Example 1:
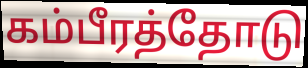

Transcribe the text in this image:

கம்பீரத்தோடு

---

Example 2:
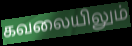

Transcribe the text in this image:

கவலையிலும்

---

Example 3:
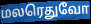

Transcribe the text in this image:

மலரெதுவோ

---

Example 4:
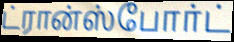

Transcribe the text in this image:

ட்ரான்ஸ்போர்ட்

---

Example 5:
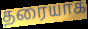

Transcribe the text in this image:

தரையாக